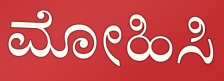
ಮೋಹಿಸಿ